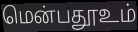
மென்பதூஉம்